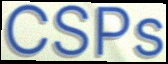
CSPs